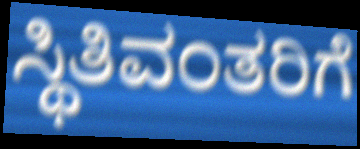
ಸ್ಥಿತಿವಂತರಿಗೆ